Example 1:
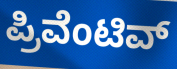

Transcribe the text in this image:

ಪ್ರಿವೆಂಟಿವ್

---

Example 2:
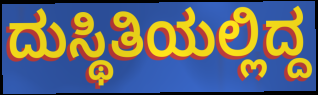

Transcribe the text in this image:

ದುಸ್ಥಿತಿಯಲ್ಲಿದ್ದ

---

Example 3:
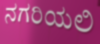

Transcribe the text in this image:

ನಗರಿಯಲಿ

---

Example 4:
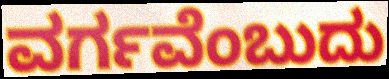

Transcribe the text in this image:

ವರ್ಗವೆಂಬುದು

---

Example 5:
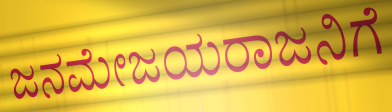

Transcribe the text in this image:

ಜನಮೇಜಯರಾಜನಿಗೆ